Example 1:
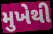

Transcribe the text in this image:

મુખેથી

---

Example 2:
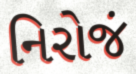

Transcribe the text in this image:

નિરોજં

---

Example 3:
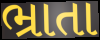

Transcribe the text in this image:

ભ્રાતા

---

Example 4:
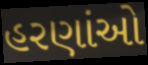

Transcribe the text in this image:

હરણાંઓ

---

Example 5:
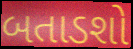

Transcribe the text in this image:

બતાડશો